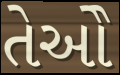
તેઓે